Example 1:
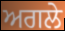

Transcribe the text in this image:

ਅਗਲੇ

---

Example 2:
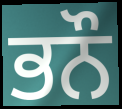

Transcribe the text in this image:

ਭਨੌ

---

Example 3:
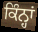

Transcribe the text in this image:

ਕਿੰਨ੍ਹਾਂ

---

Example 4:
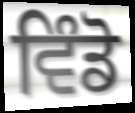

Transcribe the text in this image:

ਵਿੰਡੋ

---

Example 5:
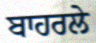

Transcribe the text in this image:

ਬਾਹਰਲੇ